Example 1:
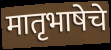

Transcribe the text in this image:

मातृभाषेचे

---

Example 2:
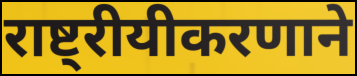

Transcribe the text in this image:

राष्ट्रीयीकरणाने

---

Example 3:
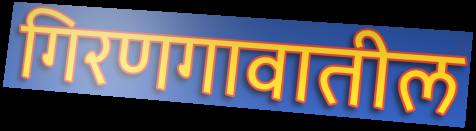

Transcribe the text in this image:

गिरणगावातील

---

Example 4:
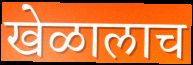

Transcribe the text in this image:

खेळालाच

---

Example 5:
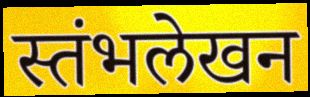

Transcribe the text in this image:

स्तंभलेखन